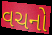
વચનો